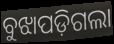
ବୁଝାପଡ଼ିଗଲା